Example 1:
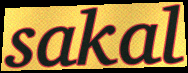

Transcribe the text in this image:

sakal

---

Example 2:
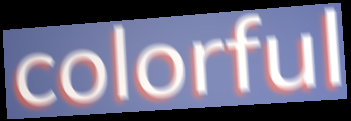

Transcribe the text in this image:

colorful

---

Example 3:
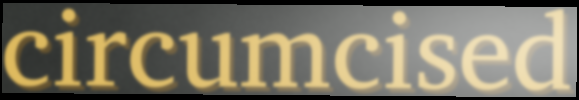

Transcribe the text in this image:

circumcised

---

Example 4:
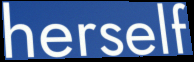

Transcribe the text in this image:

herself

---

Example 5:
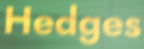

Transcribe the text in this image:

Hedges